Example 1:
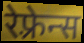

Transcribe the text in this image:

रेफ़्रेन्स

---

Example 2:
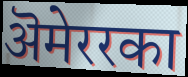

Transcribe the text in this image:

ऄमेररका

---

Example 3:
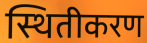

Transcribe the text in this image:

स्थितीकरण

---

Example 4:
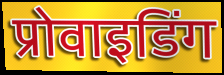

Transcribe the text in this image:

प्रोवाइडिंग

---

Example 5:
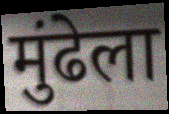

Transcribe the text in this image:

मुंढेला